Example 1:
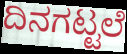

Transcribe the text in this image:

ದಿನಗಟ್ಟಲೆ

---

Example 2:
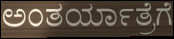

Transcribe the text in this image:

ಅಂತರ್ಯಾತ್ರೆಗೆ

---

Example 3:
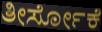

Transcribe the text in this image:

ತೀರ್ಸೋಕೆ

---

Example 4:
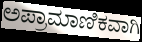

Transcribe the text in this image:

ಅಪ್ರಾಮಾಣಿಕವಾಗಿ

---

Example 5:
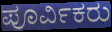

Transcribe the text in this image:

ಪೂರ್ವಿಕರು